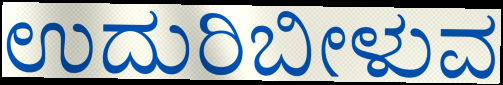
ಉದುರಿಬೀಳುವ